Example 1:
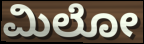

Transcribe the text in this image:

ಮಿಲೋ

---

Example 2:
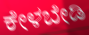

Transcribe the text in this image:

ಕೇಳಬೇಡಿ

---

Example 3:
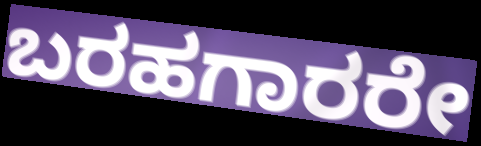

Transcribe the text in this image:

ಬರಹಗಾರರೇ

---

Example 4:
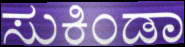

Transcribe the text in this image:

ಸುಕಿಂಡಾ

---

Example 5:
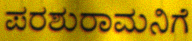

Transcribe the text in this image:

ಪರಶುರಾಮನಿಗೆ